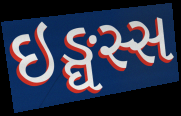
ઇઙ્ઘસ્સ